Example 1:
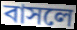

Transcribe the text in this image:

বাসলে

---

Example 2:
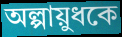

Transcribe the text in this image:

অল্পায়ুধকে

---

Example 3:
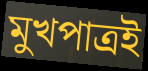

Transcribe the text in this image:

মুখপাত্রই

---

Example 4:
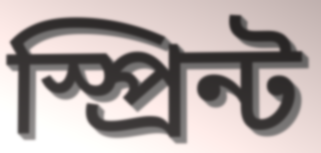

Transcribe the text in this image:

স্প্রিন্ট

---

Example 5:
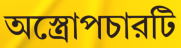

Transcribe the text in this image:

অস্ত্রোপচারটি